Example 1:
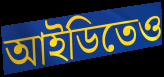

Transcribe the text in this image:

আইডিতেও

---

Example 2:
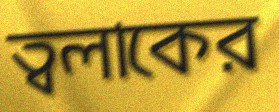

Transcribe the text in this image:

ত্বলাকের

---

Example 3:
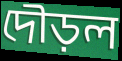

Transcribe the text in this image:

দৌড়ল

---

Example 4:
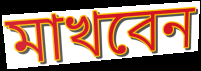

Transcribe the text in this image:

মাখবেন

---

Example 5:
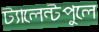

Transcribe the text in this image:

ট্যালেন্টপুলে